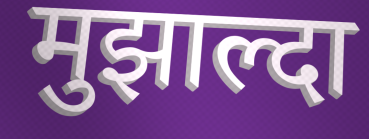
मुझाल्दा